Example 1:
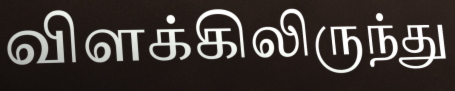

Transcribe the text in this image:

விளக்கிலிருந்து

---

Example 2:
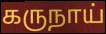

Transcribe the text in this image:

கருநாய்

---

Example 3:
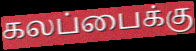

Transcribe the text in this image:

கலப்பைக்கு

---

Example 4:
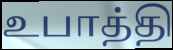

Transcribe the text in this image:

உபாத்தி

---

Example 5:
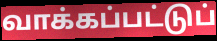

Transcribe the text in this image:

வாக்கப்பட்டுப்